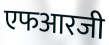
एफआरजी